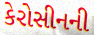
કેરોસીનની